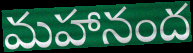
మహానంద